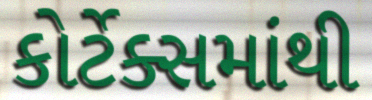
કોર્ટેક્સમાંથી